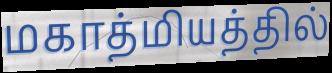
மகாத்மியத்தில்